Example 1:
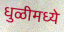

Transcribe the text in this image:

धुळीमध्ये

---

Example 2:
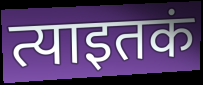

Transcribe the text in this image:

त्याइतकं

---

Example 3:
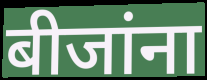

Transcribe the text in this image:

बीजांना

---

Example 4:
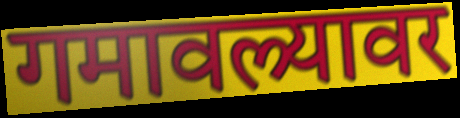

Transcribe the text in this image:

गमावल्यावर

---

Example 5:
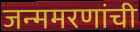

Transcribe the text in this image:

जन्ममरणांची